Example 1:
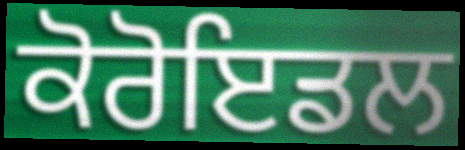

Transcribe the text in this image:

ਕੋਰੋਇਡਲ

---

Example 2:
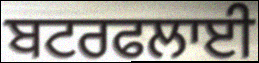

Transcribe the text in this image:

ਬਟਰਫਲਾਈ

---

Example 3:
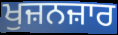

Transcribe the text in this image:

ਖੁਜ਼ਨਜ਼ਾਰ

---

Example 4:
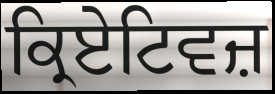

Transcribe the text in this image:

ਕ੍ਰਿਏਟਿਵਜ਼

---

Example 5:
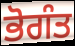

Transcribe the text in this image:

ਭੋਗੰਤ